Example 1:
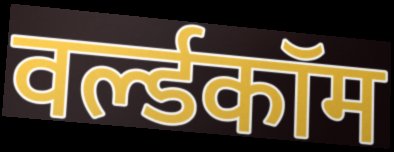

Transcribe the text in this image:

वर्ल्डकॉम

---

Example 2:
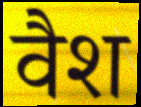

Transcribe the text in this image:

वैश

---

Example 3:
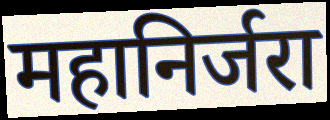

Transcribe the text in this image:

महानिर्जरा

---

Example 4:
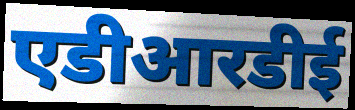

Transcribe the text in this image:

एडीआरडीई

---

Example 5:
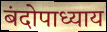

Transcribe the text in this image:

बंदोपाध्‍याय